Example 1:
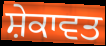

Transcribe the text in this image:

ਸ਼ੇਕਾਵਤ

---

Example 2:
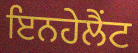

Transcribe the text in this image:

ਇਨਹੇਲੈਂਟ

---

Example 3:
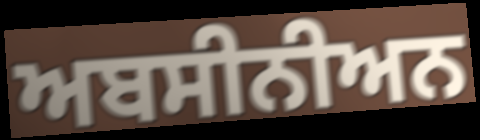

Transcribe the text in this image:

ਅਬਸੀਨੀਅਨ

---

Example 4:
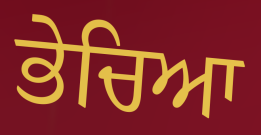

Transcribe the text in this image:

ਭੇਚਿਆ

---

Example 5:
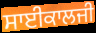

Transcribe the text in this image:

ਸਾਈਕਾਲਜੀ